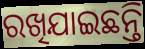
ରଖିଯାଇଛନ୍ତି